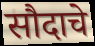
सौदाचे